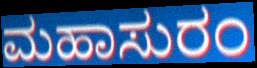
ಮಹಾಸುರಂ